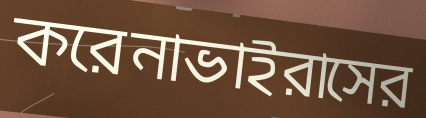
করেনাভাইরাসের